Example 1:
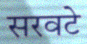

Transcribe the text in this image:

सरवटे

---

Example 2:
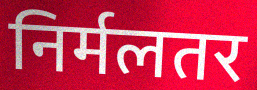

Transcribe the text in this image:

निर्मलतर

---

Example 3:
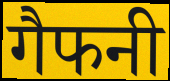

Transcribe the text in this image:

गैफनी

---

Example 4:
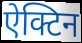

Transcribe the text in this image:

ऐक्टिन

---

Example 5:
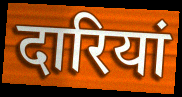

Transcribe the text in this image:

दारियां